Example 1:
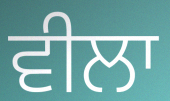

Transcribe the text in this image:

ਵੀਲਾ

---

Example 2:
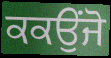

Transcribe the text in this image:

ਕਕਉਂਜੋ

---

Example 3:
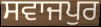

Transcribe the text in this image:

ਸਵਾਜਪੁਰ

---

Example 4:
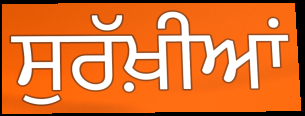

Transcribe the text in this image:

ਸੁਰੱਖ਼ੀਆਂ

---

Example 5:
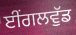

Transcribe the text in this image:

ਈਂਗਲਵੁੱਡ